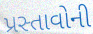
પ્રસ્તાવોની